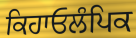
ਕਿਹਾਓਲੰਪਿਕ